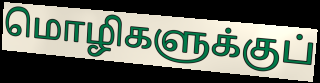
மொழிகளுக்குப்